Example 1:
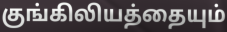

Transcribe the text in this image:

குங்கிலியத்தையும்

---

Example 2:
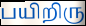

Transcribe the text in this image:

பயிறிரு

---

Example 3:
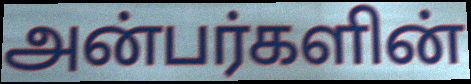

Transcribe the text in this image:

அன்பர்களின்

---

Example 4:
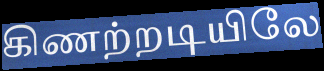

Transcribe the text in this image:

கிணற்றடியிலே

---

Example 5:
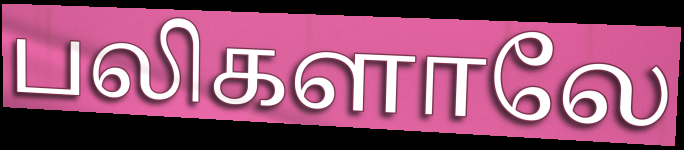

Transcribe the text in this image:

பலிகளாலே